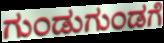
ಗುಂಡುಗುಂಡಗೆ